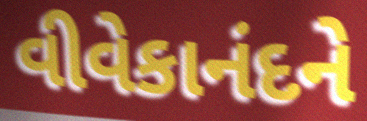
વીવેકાનંદને